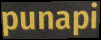
punapi